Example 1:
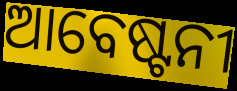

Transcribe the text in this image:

ଆବେଷ୍ଟନୀ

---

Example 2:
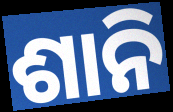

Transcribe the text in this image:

ଶାନି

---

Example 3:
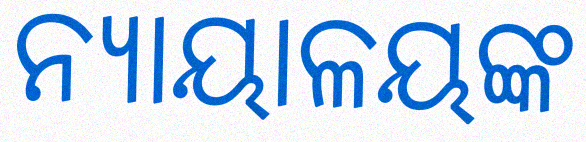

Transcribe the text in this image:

ନ୍ୟାୟାଳୟଙ୍କ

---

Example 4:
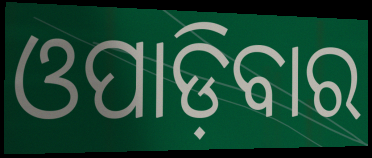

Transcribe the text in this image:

ଓପାଡ଼ିବାର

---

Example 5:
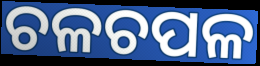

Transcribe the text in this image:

ଚଳଚପଳ